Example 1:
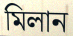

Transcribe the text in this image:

মিলান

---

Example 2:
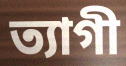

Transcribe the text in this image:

ত্যাগী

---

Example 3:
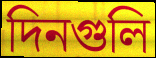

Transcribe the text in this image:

দিনগুলি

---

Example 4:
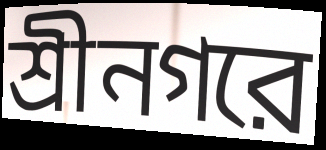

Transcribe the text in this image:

শ্রীনগরে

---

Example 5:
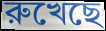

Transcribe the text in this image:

রুখেছে